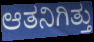
ಆತನಿಗಿತ್ತು